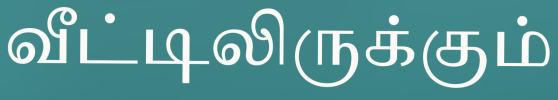
வீட்டிலிருக்கும்